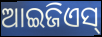
ଆଇଜିଏସ୍